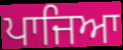
ਪਾਜਿਆ